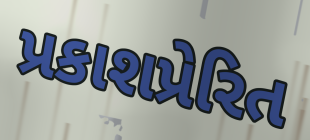
પ્રકાશપ્રેરિત